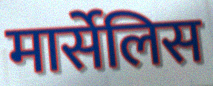
मार्सेलिस